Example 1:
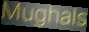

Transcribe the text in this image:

Mughals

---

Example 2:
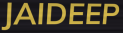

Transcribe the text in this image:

JAIDEEP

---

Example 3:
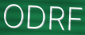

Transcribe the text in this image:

ODRF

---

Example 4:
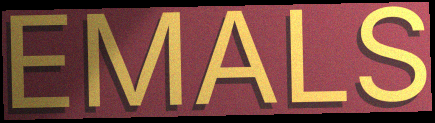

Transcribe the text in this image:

EMALS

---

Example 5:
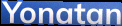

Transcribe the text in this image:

Yonatan